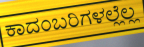
ಕಾದಂಬರಿಗಳಲ್ಲೆಲ್ಲ